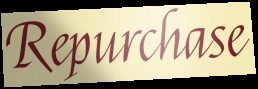
Repurchase